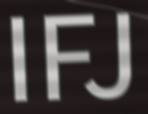
IFJ